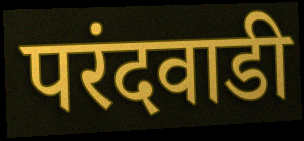
परंदवाडी